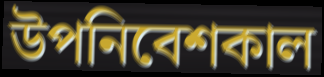
উপনিবেশকাল